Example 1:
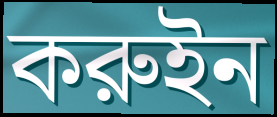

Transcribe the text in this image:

করুইন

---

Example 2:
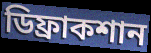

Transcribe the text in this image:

ডিফ্রাকশান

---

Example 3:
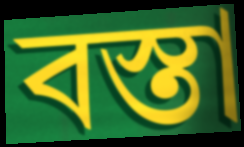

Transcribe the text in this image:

বস্তা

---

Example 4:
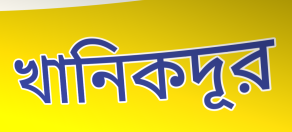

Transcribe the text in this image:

খানিকদূর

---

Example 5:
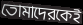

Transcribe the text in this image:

তোমাদেরকেই